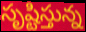
సృష్టిస్తున్న